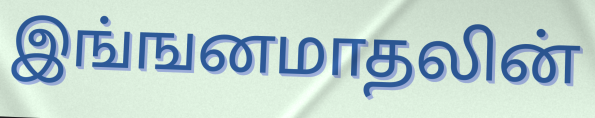
இங்ஙனமாதலின்